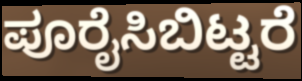
ಪೂರೈಸಿಬಿಟ್ಟರೆ